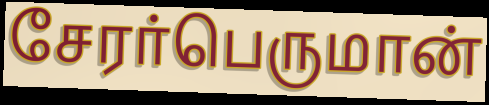
சேரர்பெருமான்